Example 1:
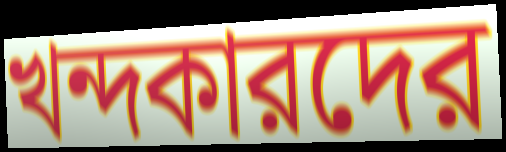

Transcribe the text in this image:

খন্দকারদের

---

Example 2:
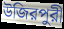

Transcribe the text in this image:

উজিরপুরী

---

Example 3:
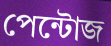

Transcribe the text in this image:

পেন্টোজ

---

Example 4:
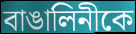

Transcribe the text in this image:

বাঙালিনীকে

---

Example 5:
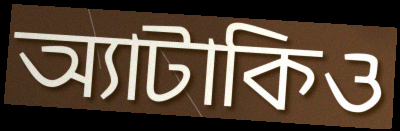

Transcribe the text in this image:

অ্যাটাকিও